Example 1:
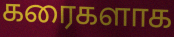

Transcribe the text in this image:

கரைகளாக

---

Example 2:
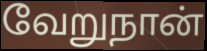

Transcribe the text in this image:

வேறுநான்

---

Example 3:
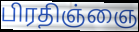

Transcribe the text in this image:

பிரதிஞ்ஞை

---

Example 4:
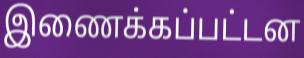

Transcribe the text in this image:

இணைக்கப்பட்டன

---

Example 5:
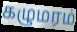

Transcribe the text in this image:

கழுமரம்